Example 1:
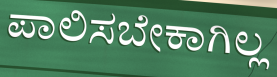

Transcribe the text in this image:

ಪಾಲಿಸಬೇಕಾಗಿಲ್ಲ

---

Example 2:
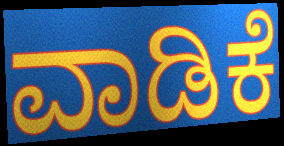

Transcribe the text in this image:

ವಾಡಿಕೆ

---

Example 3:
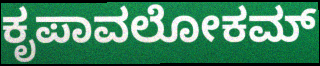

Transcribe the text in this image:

ಕೃಪಾವಲೋಕಮ್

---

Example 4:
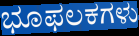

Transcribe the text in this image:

ಭೂಫಲಕಗಳು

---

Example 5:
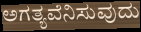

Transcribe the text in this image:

ಅಗತ್ಯವೆನಿಸುವುದು